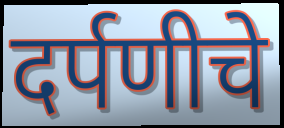
दर्पणीचे